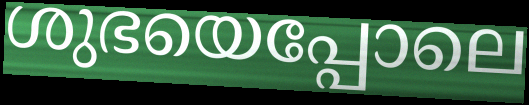
ശുഭയെപ്പോലെ